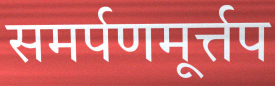
समर्पणमूर्त्तप